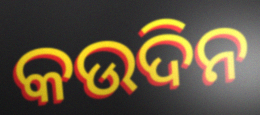
କଉଦିନ